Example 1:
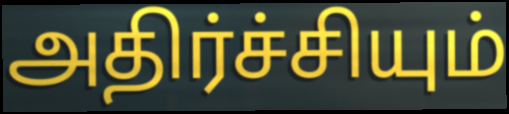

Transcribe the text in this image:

அதிர்ச்சியும்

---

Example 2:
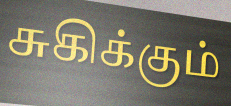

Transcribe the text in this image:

சுகிக்கும்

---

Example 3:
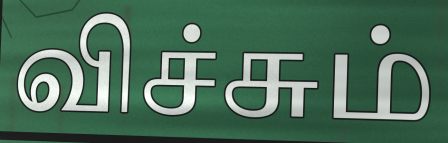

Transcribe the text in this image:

விச்சும்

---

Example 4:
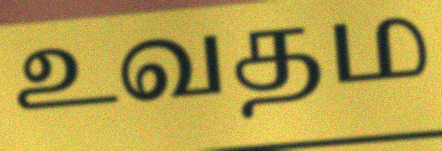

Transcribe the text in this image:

உவதம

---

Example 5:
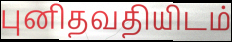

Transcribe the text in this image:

புனிதவதியிடம்